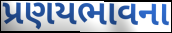
પ્રણયભાવના